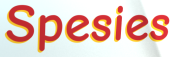
Spesies